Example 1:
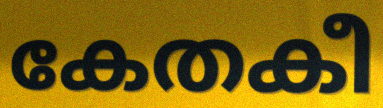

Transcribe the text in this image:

കേതകീ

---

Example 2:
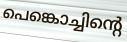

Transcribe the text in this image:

പെങ്കൊച്ചിന്റെ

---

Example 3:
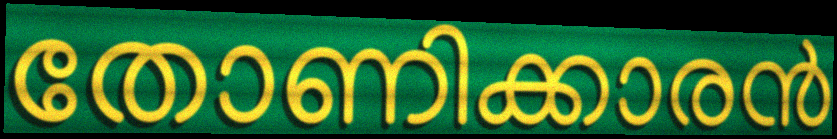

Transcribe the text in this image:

തോണിക്കാരൻ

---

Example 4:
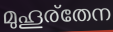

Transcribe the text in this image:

മുഹൂര്തേന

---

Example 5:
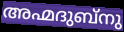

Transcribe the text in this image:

അഹ്മദുബ്നു